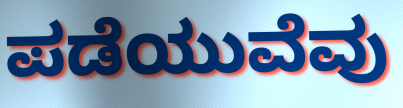
ಪಡೆಯುವೆವು